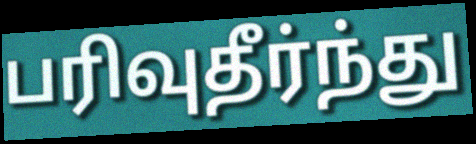
பரிவுதீர்ந்து